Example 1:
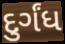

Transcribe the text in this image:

દુર્ગંધ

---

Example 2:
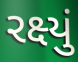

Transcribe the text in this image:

રક્ષ્યું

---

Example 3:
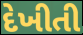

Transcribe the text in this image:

દેખીતી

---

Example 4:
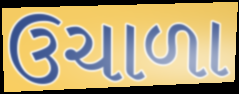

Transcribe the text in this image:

ઉચાળા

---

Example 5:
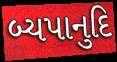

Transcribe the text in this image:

બ્યપાનુદિ